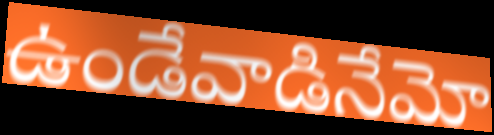
ఉండేవాడినేమో